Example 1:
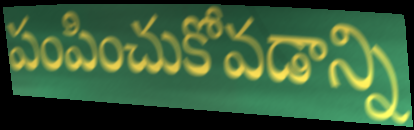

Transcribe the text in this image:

పంపించుకోవడాన్ని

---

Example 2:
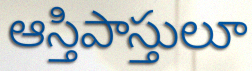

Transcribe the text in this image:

ఆస్తిపాస్తులూ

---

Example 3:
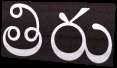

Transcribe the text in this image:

తిరు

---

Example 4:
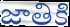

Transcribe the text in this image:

జాతికి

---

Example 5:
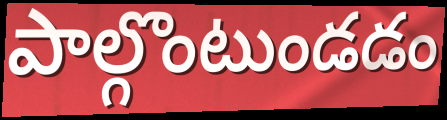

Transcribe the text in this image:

పాల్గొంటుండడం